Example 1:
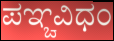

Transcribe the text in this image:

ಪಞ್ಚವಿಧಂ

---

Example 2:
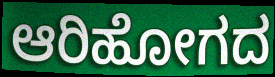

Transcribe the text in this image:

ಆರಿಹೋಗದ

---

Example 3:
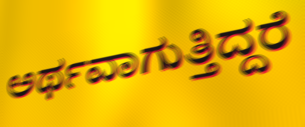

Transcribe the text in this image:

ಅರ್ಥವಾಗುತ್ತಿದ್ದರೆ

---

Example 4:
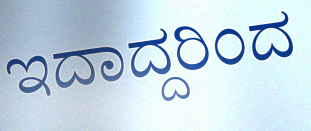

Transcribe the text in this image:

ಇದಾದ್ದರಿಂದ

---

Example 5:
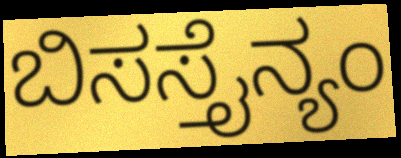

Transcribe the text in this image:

ಬಿಸಸ್ತೈನ್ಯಂ